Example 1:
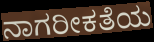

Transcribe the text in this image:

ನಾಗರೀಕತೆಯ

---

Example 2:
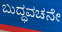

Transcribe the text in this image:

ಬುದ್ಧವಚನೇ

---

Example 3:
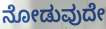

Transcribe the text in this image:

ನೋಡುವುದೇ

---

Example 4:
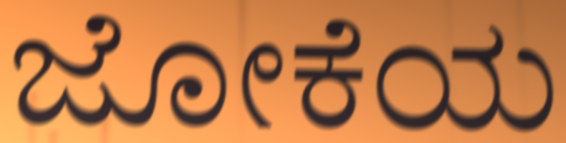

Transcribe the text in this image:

ಜೋಕೆಯ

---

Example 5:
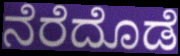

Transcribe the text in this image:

ನೆರೆದೊಡೆ